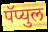
पॅप्युल